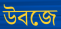
উবজে